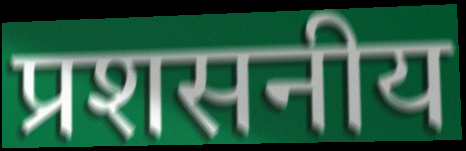
प्रशसनीय